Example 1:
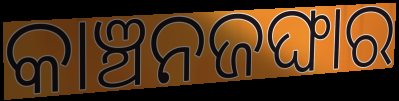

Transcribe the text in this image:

କାଞ୍ଚନଜଙ୍ଘାର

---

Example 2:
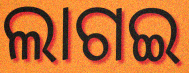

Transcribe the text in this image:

ଲାଗଇ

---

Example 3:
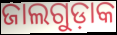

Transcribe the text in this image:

ଜାଲଗୁଡ଼ାକ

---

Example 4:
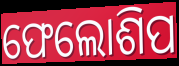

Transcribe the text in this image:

ଫେଲୋଶିପ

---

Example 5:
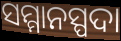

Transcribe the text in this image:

ସମ୍ମାନସ୍ପଦା